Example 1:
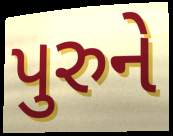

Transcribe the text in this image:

પુરુને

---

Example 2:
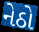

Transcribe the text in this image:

નેઠો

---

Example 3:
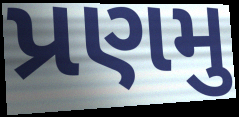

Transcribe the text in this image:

પ્રણમુ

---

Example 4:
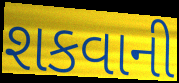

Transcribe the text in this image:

શકવાની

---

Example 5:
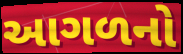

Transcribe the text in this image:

આગળનો